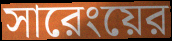
সারেংয়ের